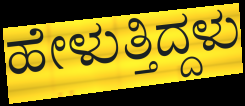
ಹೇಳುತ್ತಿದ್ದಳು